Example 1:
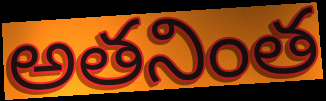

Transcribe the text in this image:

అతనింత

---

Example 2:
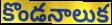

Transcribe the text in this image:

కొండనాలుక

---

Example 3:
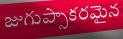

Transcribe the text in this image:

జుగుప్సాకరమైన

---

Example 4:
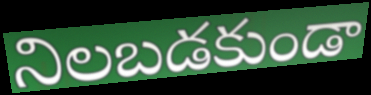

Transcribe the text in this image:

నిలబడకుండా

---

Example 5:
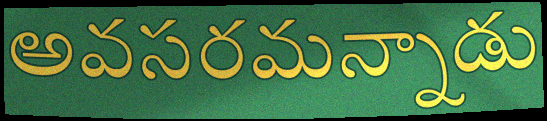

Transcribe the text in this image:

అవసరమన్నాడు